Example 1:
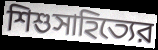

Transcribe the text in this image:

শিশুসাহিত্যের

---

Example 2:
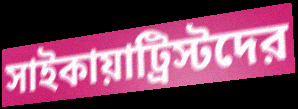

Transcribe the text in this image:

সাইকায়াট্রিস্টদের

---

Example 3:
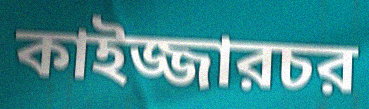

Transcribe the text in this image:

কাইজ্জারচর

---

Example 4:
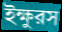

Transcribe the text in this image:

ইক্ষুরস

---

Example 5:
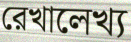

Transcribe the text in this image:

রেখালেখ্য